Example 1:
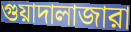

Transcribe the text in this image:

গুয়াদালাজারা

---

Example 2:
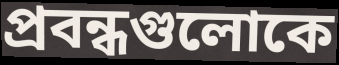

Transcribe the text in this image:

প্রবন্ধগুলোকে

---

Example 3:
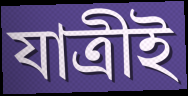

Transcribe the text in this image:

যাত্রীই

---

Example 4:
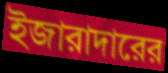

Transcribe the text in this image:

ইজারাদারের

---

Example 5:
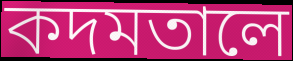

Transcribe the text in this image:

কদমতালে